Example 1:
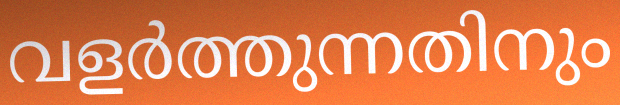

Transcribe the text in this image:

വളർത്തുന്നതിനും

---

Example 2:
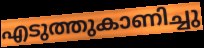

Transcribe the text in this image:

എടുത്തുകാണിച്ചു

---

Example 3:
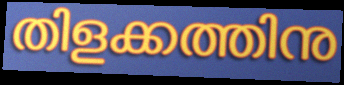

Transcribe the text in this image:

തിളക്കത്തിനു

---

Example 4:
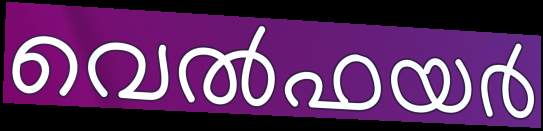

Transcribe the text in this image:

വെൽഫയർ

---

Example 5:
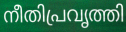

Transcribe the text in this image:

നീതിപ്രവൃത്തി